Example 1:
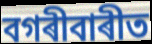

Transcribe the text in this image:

বগৰীবাৰীত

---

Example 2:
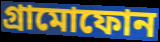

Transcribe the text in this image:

গ্ৰামোফোন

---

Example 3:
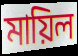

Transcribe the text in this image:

মায়িল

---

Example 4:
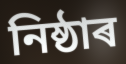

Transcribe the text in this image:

নিষ্ঠাৰ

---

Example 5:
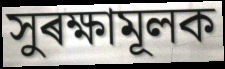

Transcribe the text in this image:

সুৰক্ষামূলক